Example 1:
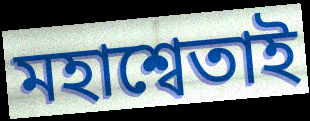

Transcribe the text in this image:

মহাশ্বেতাই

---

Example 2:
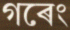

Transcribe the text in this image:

গৰেং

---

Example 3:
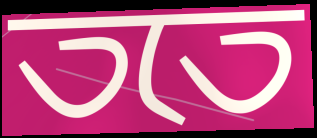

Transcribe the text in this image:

ততে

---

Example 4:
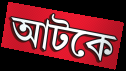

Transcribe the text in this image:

আটকে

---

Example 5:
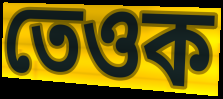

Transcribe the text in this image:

তেওক